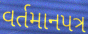
વર્તમાનપત્ર